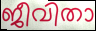
ജീവിതാ